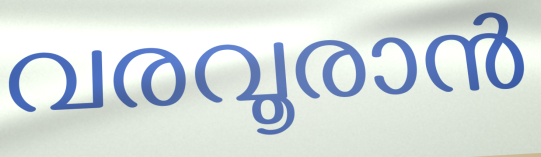
വരവൂരാൻ